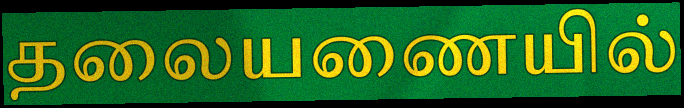
தலையணையில்